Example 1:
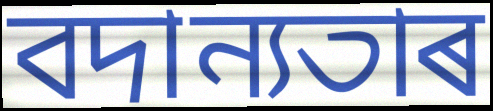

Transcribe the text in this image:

বদান্যতাৰ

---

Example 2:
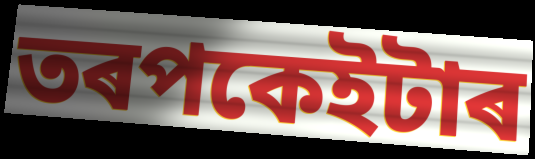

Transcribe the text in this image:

তৰপকেইটাৰ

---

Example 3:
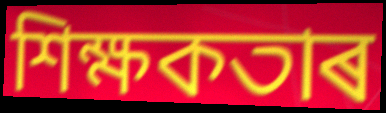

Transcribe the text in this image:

শিক্ষকতাৰ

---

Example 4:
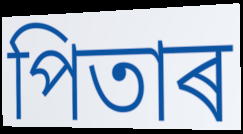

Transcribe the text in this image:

পিতাৰ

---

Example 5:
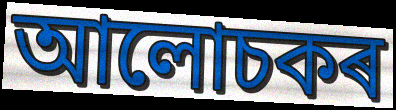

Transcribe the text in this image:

আলোচকৰ